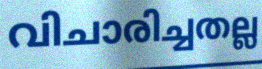
വിചാരിച്ചതല്ല